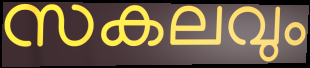
സകലവും